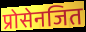
प्रोसेनजित